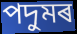
পদুমৰ